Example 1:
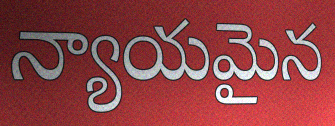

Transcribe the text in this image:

న్యాయమైన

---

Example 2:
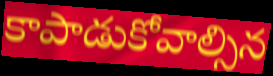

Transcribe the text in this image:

కాపాడుకోవాల్సిన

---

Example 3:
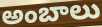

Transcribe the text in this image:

అంబాలు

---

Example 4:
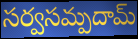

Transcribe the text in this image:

సర్వసమ్పదామ్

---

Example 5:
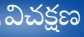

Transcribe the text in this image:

విచక్షణ